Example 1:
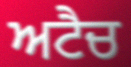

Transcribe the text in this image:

ਅਟੈਚ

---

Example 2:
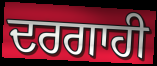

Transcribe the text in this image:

ਦਰਗਾਹੀ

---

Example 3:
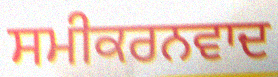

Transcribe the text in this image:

ਸਮੀਕਰਨਵਾਦ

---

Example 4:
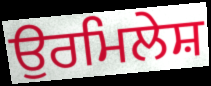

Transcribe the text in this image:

ਉਰਮਿਲੇਸ਼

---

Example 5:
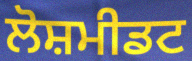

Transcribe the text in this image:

ਲੋਸ਼ਮੀਡਟ